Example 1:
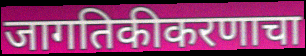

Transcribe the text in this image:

जागतिकीकरणाचा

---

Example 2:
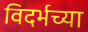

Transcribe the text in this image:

विदर्भच्या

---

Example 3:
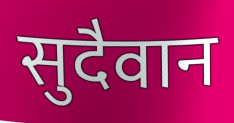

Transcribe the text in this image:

सुदैवान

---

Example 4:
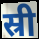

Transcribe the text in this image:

स्री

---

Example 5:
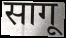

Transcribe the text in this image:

सागू